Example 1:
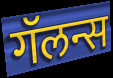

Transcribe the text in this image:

गॅलन्स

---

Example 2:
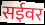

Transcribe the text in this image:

सईवर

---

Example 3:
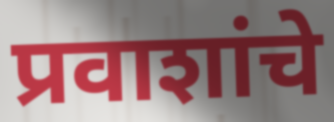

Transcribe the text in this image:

प्रवाशांचे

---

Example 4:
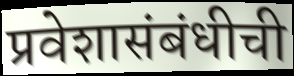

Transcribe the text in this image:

प्रवेशासंबंधीची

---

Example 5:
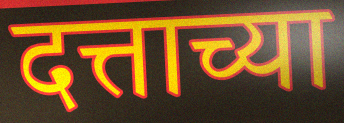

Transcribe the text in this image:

दत्ताच्या